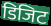
डिजिट